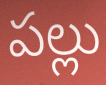
పల్లు